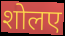
शोलए